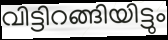
വിട്ടിറങ്ങിയിട്ടും